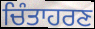
ਚਿੰਤਾਹਰਣ